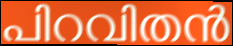
പിറവിതൻ